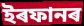
ইৰফানৰ